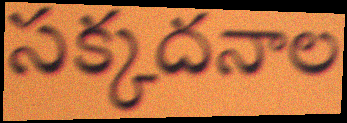
సక్కదనాల